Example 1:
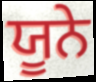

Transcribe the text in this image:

ਯੂਨੇ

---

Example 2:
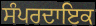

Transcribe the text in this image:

ਸੰਪਰਦਾਇਕ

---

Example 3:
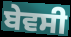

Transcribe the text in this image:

ਬੇਵਸੀ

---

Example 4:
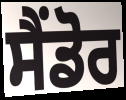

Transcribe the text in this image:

ਸੈਂਡੋਰ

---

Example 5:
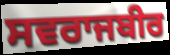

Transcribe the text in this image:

ਸਵਰਾਜਬੀਰ